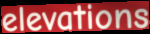
elevations